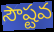
సౌష్టవ